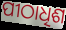
ପୀଠାଧିଶ